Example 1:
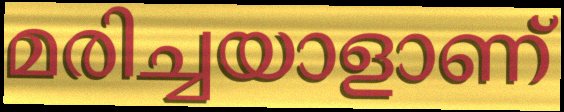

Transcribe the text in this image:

മരിച്ചയാളാണ്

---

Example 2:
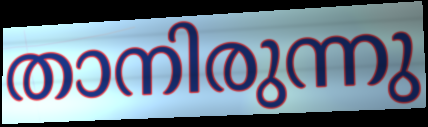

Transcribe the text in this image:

താനിരുന്നു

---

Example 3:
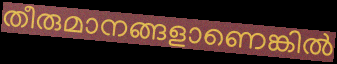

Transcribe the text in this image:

തീരുമാനങ്ങളാണെങ്കിൽ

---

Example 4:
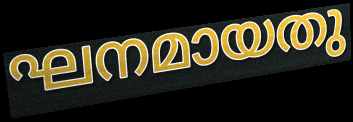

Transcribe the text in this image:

ഘനമായതു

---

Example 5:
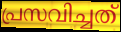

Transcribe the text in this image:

പ്രസവിച്ചത്